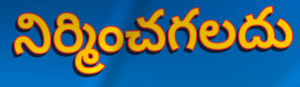
నిర్మించగలదు